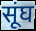
सूंघ